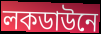
লকডাউনে